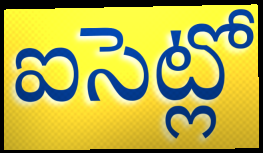
ఐసెట్లో